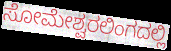
ಸೋಮೇಶ್ವರಲಿಂಗದಲ್ಲಿ